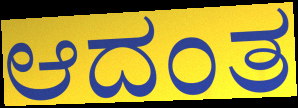
ಆದಂತ